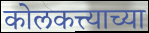
कोलकत्त्याच्या